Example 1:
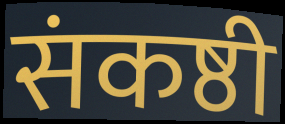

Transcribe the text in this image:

संकष्ठी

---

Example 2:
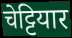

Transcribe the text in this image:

चेट्टियार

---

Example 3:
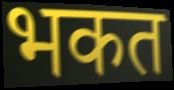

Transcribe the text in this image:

भकत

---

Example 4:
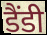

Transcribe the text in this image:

डैंडी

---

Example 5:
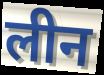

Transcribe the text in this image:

लीन